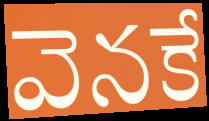
వెనకే